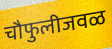
चौफुलीजवळ